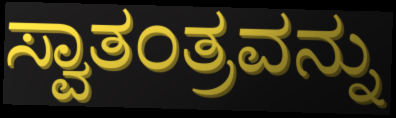
ಸ್ವಾತಂತ್ರವನ್ನು